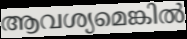
ആവശ്യമെങ്കിൽ